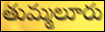
తుమ్మలూరు